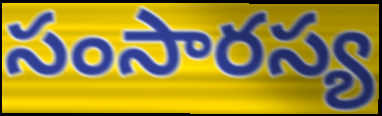
సంసారస్య